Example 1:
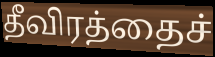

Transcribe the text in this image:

தீவிரத்தைச்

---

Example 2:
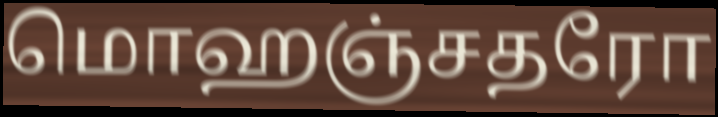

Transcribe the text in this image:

மொஹஞ்சதரோ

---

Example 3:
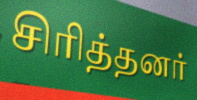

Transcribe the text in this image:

சிரித்தனர்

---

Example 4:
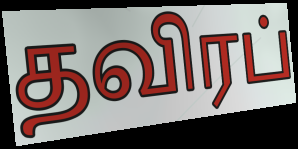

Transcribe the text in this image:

தவிரப்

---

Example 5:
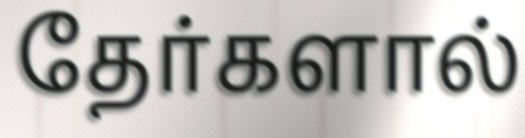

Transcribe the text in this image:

தேர்களால்